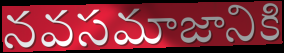
నవసమాజానికి